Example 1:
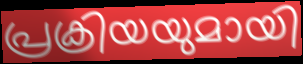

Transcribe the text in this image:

പ്രക്രിയയുമായി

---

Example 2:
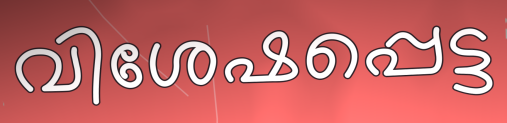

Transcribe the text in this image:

വിശേഷപ്പെട്ട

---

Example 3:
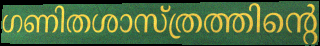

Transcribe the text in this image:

ഗണിതശാസ്ത്രത്തിന്റെ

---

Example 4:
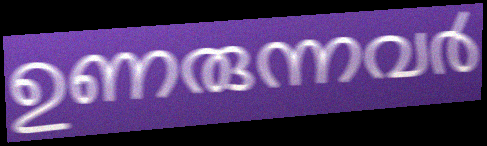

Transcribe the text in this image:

ഉണരുന്നവർ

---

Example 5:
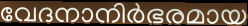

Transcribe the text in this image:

വേദനാനിർഭരമായ